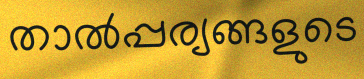
താൽപ്പര്യങ്ങളുടെ